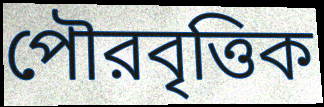
পৌরবৃত্তিক